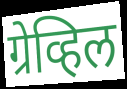
ग्रेव्हिल